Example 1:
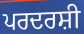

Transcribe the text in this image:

ਪਰਦਰਸ਼ੀ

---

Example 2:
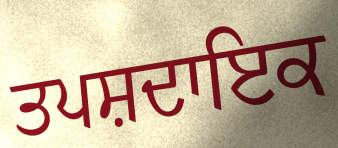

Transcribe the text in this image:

ਤਪਸ਼ਦਾਇਕ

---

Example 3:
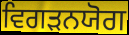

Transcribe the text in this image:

ਵਿਗੜਨਯੋਗ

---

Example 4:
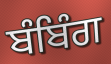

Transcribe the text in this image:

ਬੰਬਿੰਗ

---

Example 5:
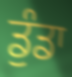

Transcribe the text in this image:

ਡੁੰਡਾ